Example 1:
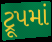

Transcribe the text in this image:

ટ્રૂપમાં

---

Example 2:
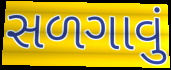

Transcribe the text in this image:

સળગાવું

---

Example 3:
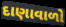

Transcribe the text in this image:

દાણાવાળો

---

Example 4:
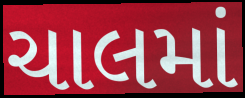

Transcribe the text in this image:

ચાલમાં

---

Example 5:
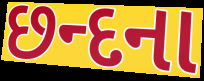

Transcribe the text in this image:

છન્દના